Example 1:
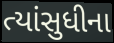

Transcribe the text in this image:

ત્યાંસુધીના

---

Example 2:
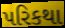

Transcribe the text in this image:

પરિકથા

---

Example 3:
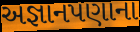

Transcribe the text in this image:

અજ્ઞાનપણાના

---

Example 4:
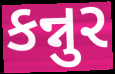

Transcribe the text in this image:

કન્નુર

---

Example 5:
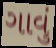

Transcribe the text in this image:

ગાવું